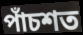
পাঁচশত